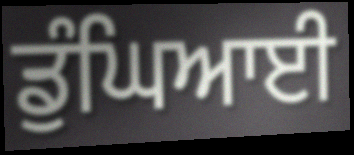
ਡੁੰਘਿਆਈ